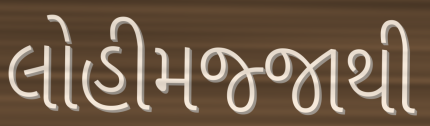
લોહીમજ્જાથી